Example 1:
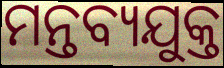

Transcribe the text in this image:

ମନ୍ତବ୍ୟଯୁକ୍ତ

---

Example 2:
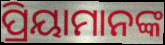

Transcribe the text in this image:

ପ୍ରିୟାମାନଙ୍କ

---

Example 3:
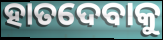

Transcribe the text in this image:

ହାତଦେବାକୁ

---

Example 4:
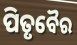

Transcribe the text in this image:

ପିତୃବୈର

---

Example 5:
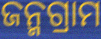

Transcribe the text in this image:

ଜନ୍ମଗ୍ରାମ